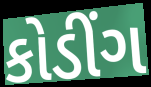
કોડીંગ